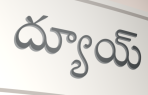
ద్యూయ్